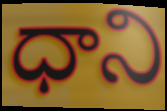
ధాని